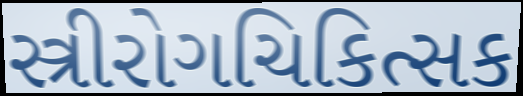
સ્ત્રીરોગચિકિત્સક